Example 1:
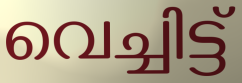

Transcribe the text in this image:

വെച്ചിട്ട്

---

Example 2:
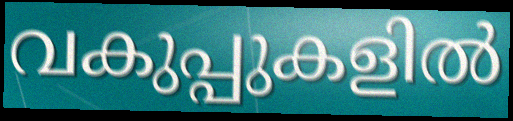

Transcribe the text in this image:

വകുപ്പുകളിൽ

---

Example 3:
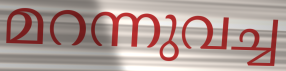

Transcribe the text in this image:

മറന്നുവച്ച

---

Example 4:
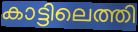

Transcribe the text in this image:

കാട്ടിലെത്തി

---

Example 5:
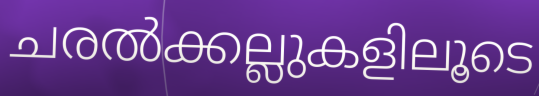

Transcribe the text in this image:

ചരൽക്കല്ലുകളിലൂടെ